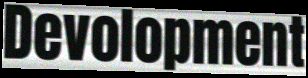
Devolopment